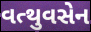
વત્થુવસેન